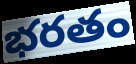
భరతం